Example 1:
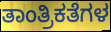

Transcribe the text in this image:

ತಾಂತ್ರಿಕತೆಗಳ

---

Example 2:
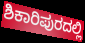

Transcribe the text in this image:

ಶಿಕಾರಿಪುರದಲ್ಲಿ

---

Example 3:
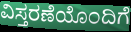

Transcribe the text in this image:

ವಿಸ್ತರಣೆಯೊಂದಿಗೆ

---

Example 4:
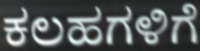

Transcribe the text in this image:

ಕಲಹಗಳಿಗೆ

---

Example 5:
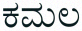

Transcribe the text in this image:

ಕಮಲ